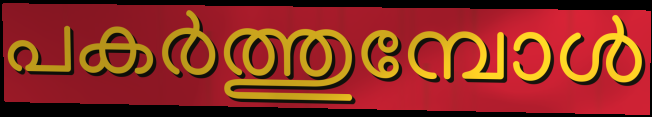
പകർത്തുമ്പോൾ